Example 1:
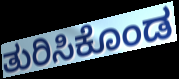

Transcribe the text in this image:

ತುರಿಸಿಕೊಂಡ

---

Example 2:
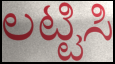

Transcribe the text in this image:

ಲಟ್ಟಿಸಿ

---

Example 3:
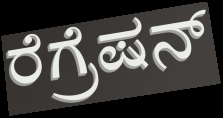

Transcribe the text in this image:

ರೆಗ್ರೆಷನ್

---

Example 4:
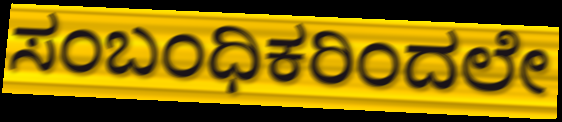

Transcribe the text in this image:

ಸಂಬಂಧಿಕರಿಂದಲೇ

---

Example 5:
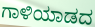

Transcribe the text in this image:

ಗಾಳಿಯಾಡದ